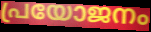
പ്രയോജനം